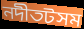
নদীতটসম